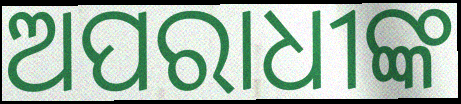
ଅପରାଧୀଙ୍କ